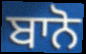
ਬਾਨੋ